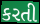
કરતી